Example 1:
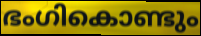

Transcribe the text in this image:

ഭംഗികൊണ്ടും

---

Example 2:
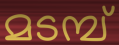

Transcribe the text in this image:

മടമ്പ്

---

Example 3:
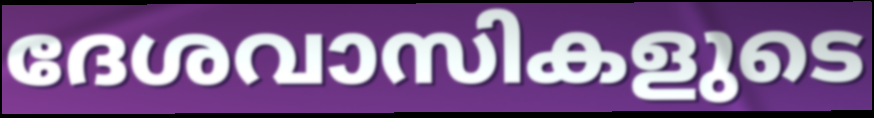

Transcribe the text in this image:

ദേശവാസികളുടെ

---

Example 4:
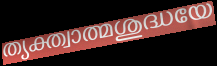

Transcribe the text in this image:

ത്യക്ത്വാത്മശുദ്ധയേ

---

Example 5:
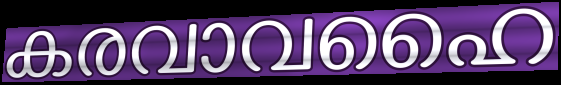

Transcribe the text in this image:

കരവാവഹൈ